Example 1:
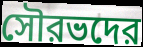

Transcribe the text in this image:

সৌরভদের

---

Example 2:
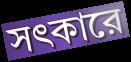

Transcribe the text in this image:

সৎকারে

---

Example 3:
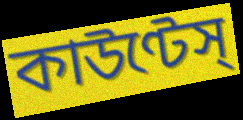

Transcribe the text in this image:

কাউণ্টেস্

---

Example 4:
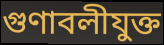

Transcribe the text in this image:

গুণাবলীযুক্ত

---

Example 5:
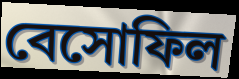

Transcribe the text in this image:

বেসোফিল